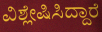
ವಿಶ್ಲೇಷಿಸಿದ್ದಾರೆ